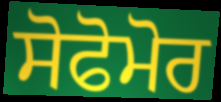
ਸੋਫੋਮੋਰ